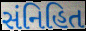
સંનિહિત